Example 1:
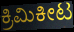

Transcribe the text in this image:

ಕ್ರಿಮಿಕೀಟ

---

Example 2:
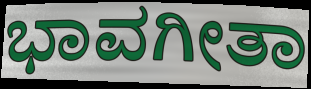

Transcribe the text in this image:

ಭಾವಗೀತಾ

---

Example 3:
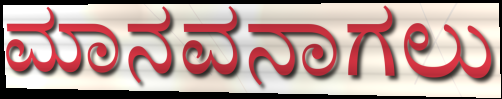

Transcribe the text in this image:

ಮಾನವನಾಗಲು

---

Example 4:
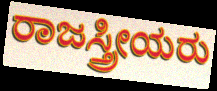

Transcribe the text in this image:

ರಾಜಸ್ತ್ರೀಯರು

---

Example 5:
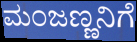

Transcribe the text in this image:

ಮಂಜಣ್ಣನಿಗೆ